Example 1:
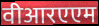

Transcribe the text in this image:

वीआरएएम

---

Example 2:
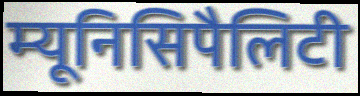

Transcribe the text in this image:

म्यूनिसिपैलिटी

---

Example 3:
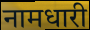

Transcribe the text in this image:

नामधारी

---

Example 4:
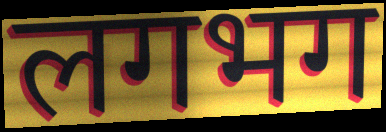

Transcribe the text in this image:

लगभग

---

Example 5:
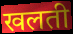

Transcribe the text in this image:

खलती